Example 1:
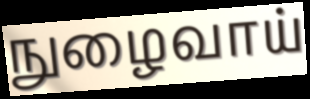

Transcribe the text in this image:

நுழைவாய்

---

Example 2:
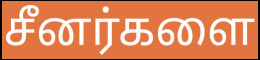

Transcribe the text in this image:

சீனர்களை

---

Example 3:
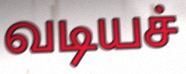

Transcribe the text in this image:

வடியச்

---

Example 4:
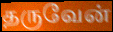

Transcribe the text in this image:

தருவேன்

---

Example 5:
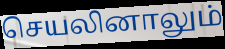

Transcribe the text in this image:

செயலினாலும்